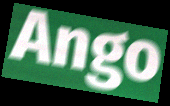
Ango